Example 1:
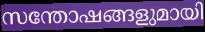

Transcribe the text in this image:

സന്തോഷങ്ങളുമായി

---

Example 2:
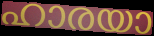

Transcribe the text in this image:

ഹാരയാ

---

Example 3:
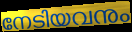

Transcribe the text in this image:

നേടിയവനും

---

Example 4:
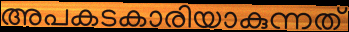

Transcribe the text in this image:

അപകടകാരിയാകുന്നത്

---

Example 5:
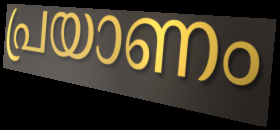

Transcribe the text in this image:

പ്രയാണം